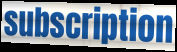
subscription